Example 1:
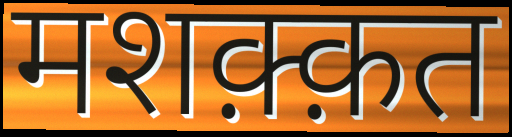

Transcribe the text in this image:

मशक़्क़त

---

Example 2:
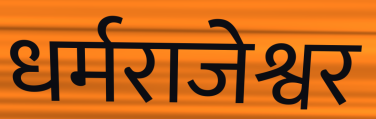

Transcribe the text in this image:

धर्मराजेश्वर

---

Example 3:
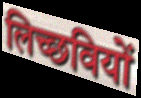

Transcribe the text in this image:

लिच्छवियों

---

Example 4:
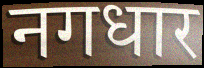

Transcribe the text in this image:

नगधार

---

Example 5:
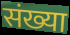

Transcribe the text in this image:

संख्‍या